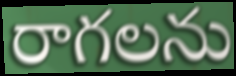
రాగలను